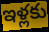
ఇళ్లకు